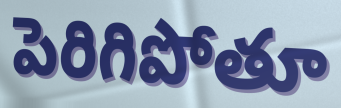
పెరిగిపోతూ